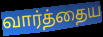
வார்த்தைய